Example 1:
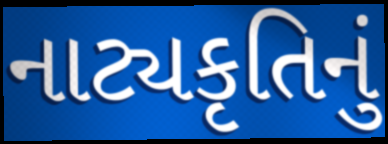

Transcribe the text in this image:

નાટ્યકૃતિનું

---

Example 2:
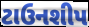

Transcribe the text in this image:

ટાઉનશીપ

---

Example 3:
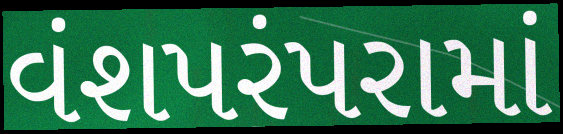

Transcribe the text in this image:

વંશપરંપરામાં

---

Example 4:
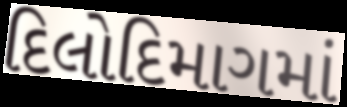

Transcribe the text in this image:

દિલોદિમાગમાં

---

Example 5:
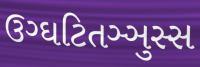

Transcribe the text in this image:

ઉગ્ઘટિતઞ્ઞુસ્સ